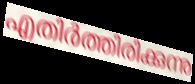
എതിർത്തിരിക്കുന്നു